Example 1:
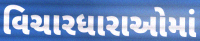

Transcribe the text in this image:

વિચારધારાઓમાં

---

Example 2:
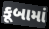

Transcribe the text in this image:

કૂબામાં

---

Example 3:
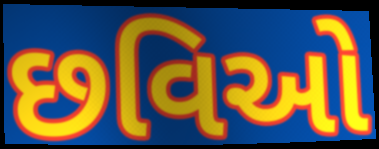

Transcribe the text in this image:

છવિઓ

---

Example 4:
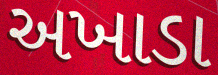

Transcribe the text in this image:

અખાડા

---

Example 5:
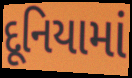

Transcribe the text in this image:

દૂનિયામાં